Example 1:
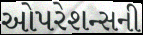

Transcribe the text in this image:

ઓપરેશન્સની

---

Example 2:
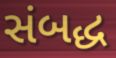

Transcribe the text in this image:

સંબદ્ધ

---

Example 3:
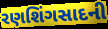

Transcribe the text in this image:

રણશિંગસાદની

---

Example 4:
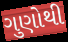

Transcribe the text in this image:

ગુણોથી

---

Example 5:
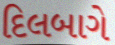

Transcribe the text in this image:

દિલબાગે